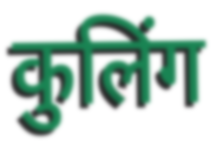
कुलिंग